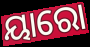
ୟାରୋ